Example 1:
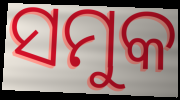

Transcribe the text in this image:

ସମୁକ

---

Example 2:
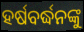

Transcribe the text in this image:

ହର୍ଷବର୍ଦ୍ଧନଙ୍କୁ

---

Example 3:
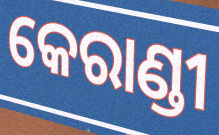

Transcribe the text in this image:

କେରାଣ୍ଡୀ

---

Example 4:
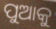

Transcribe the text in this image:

ପୁଆକୁ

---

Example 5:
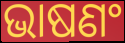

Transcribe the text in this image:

ଭାଷଣଂ